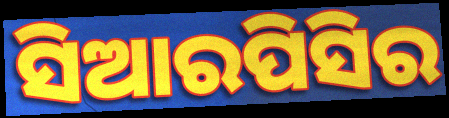
ସିଆରପିସିର